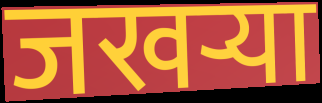
जखऱ्या